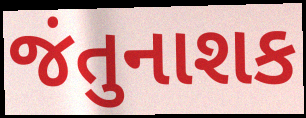
જંતુનાશક